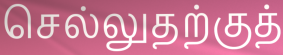
செல்லுதற்குத்